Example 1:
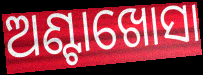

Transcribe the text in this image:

ଅଣ୍ଟାଖୋସା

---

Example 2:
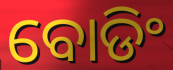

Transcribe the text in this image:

ବୋଡିଂ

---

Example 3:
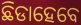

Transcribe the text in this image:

ଛିଡାହେବେ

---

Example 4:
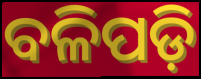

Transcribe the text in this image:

ବଳିପଡ଼ି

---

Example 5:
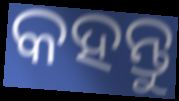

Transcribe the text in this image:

କହନ୍ତୁ